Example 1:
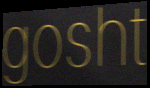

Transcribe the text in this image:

gosht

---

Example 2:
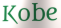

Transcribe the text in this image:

Kobe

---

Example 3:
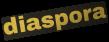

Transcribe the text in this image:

diaspora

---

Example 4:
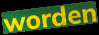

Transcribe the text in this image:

worden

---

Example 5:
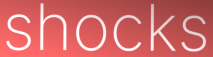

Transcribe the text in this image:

shocks